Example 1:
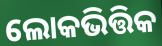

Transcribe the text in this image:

ଲୋକଭିତ୍ତିକ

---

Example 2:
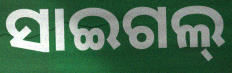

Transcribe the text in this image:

ସାଇଗଲ୍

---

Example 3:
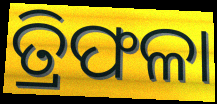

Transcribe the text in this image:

ତ୍ରିଫଳା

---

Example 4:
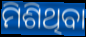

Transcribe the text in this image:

ମିଶିଥିବା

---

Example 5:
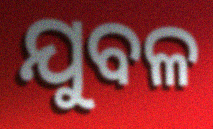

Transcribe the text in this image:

ଯୁବଳ